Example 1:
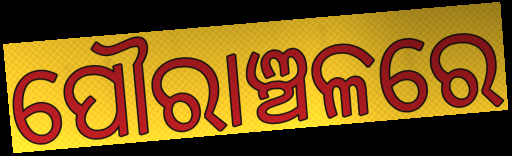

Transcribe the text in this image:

ପୌରାଞ୍ଚଳରେ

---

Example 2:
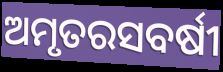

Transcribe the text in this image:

ଅମୃତରସବର୍ଷୀ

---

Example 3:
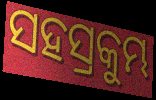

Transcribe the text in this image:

ସହସ୍ରକୁମ୍ଭ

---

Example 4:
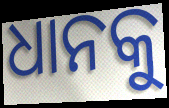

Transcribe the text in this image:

ଧାନକୁ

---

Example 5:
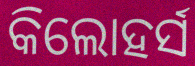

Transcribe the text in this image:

କିଲୋହର୍ସ